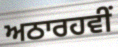
ਅਠਾਰਹਵੀਂ